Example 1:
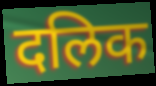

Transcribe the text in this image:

दलिक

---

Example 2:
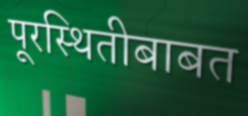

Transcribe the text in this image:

पूरस्थितीबाबत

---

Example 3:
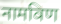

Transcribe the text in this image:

नामविण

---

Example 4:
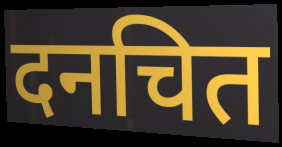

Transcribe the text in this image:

दनचित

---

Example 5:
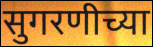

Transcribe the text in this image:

सुगरणीच्या